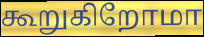
கூறுகிறோமா